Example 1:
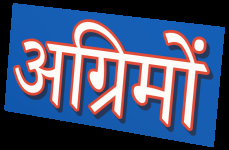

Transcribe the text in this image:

अग्रिमों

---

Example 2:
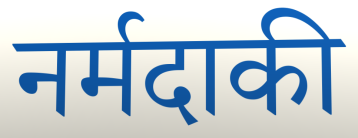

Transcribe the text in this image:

नर्मदाकी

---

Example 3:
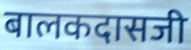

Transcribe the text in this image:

बालकदासजी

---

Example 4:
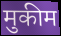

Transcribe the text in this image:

मुकीम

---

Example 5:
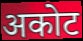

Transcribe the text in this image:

अकोट